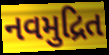
નવમુદ્રિત